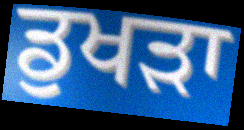
ਡੁਖੜਾ